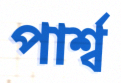
পাৰ্শ্ব